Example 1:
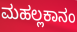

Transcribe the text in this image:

ಮಹಲ್ಲಕಾನಂ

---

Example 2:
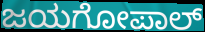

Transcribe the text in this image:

ಜಯಗೋಪಾಲ್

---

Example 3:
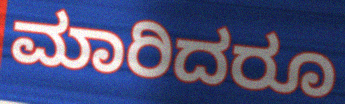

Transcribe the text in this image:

ಮಾರಿದರೂ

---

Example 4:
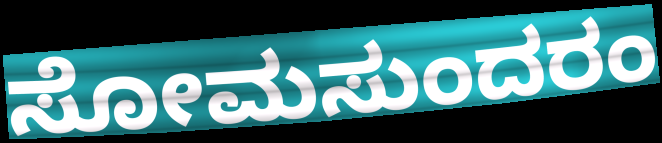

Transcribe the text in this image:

ಸೋಮಸುಂದರಂ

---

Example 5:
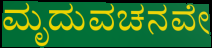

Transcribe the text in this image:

ಮೃದುವಚನವೇ